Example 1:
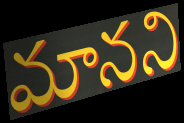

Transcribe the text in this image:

మానని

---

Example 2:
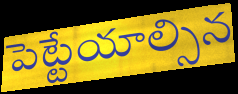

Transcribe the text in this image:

పెట్టేయాల్సిన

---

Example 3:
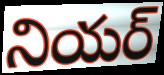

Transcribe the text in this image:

నియర్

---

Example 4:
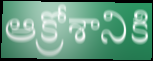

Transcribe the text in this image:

ఆక్రోశానికి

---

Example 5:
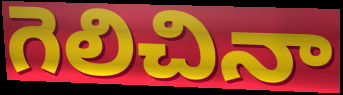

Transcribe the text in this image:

గెలిచినా